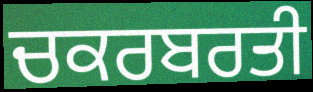
ਚਕਰਬਰਤੀ